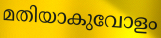
മതിയാകുവോളം